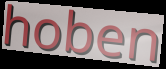
hoben